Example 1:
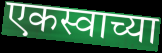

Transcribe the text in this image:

एकस्वाच्या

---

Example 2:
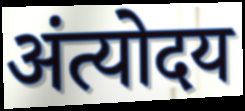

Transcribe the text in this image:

अंत्योदय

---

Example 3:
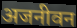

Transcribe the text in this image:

अजनीवन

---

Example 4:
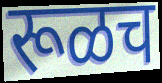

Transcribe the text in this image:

रूळच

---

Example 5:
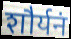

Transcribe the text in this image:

शौर्यनं